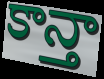
కాన్తా